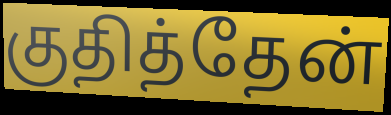
குதித்தேன்